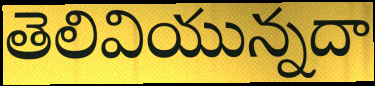
తెలివియున్నదా